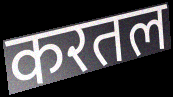
करतल